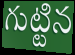
గుట్టిన